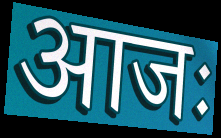
आजः